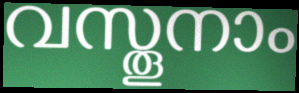
വസ്തൂനാം